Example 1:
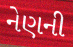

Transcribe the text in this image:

નેણની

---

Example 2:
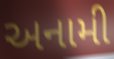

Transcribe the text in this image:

અનામી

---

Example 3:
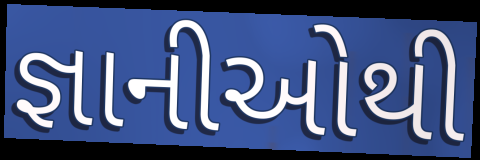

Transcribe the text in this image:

જ્ઞાનીઓથી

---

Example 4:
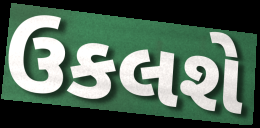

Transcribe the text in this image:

ઉકલશે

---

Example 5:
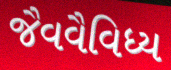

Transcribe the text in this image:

જૈવવૈવિધ્ય